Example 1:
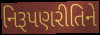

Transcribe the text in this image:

નિરૂપણરીતિને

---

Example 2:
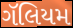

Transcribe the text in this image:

ગૅલિયમ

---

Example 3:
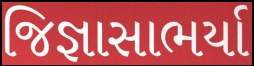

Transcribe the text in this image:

જિજ્ઞાસાભર્યા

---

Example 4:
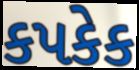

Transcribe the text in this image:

કપકેક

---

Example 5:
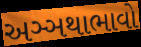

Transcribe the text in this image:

અઞ્ઞથાભાવો